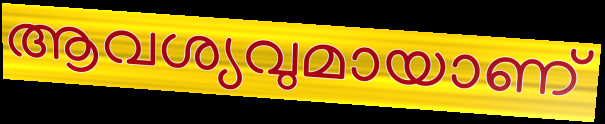
ആവശ്യവുമായാണ്